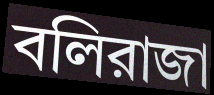
বলিরাজা